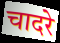
चादरे